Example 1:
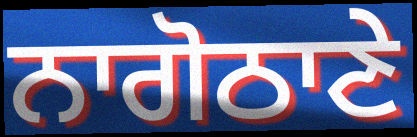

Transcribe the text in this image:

ਨਾਗੋਠਾਣੇ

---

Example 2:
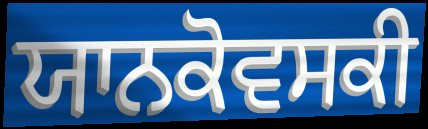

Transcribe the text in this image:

ਯਾਨਕੋਵਸਕੀ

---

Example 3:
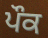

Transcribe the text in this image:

ਪੌਕ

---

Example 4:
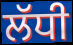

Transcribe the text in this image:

ਲੱਧੀ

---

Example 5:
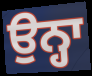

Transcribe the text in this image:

ਉਨ੍ਹਾ